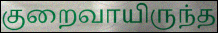
குறைவாயிருந்த